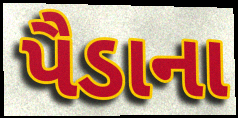
પૈડાના